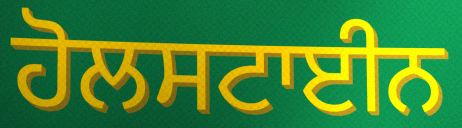
ਹੋਲਸਟਾਈਨ